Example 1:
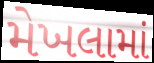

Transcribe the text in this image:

મેખલામાં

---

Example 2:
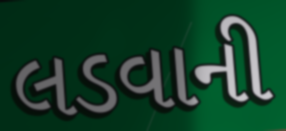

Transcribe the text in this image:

લડવાની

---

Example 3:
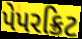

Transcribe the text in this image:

પેપરક્રિટ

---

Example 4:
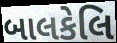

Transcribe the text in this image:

બાલકેલિ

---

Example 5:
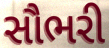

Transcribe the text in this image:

સૌભરી